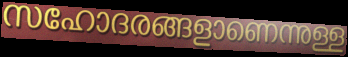
സഹോദരങ്ങളാണെന്നുള്ള